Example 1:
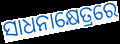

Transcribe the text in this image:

ସାଧନାକ୍ଷେତ୍ରରେ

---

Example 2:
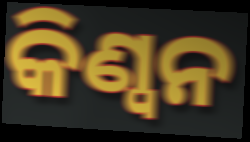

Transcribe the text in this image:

କିଣ୍ୱନ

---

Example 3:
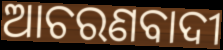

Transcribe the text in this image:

ଆଚରଣବାଦୀ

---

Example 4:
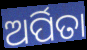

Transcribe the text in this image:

ଅର୍ପିତା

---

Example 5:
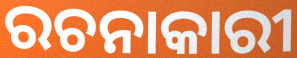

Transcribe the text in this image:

ରଚନାକାରୀ